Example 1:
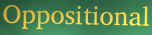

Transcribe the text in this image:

Oppositional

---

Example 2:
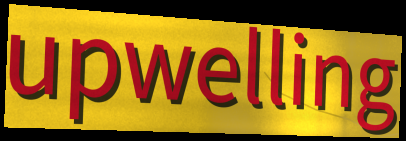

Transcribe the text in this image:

upwelling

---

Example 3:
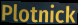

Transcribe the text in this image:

Plotnick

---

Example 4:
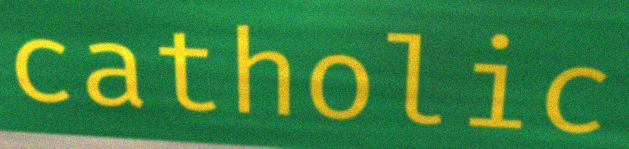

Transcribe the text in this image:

catholic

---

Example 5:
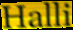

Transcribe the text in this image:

Halli